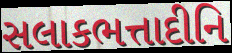
સલાકભત્તાદીનિ